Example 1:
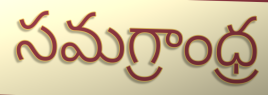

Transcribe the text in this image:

సమగ్రాంధ్ర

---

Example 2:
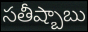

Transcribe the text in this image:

సతీష్బాబు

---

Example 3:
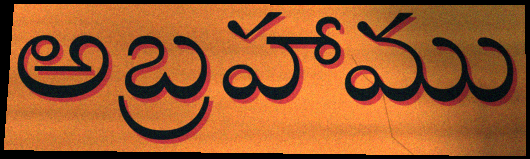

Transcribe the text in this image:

అబ్రహాము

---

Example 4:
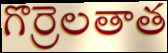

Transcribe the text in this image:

గొర్రెలతాత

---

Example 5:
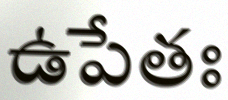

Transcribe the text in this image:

ఉపేతః